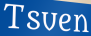
Tsuen